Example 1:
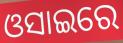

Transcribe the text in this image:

ଓସାଇରେ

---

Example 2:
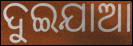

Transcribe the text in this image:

ଦୁଇଯାଆ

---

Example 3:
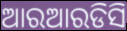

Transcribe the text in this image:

ଆରଆରଡିସି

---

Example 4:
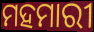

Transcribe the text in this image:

ମହମାରୀ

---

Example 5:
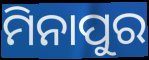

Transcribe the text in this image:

ମିନାପୁର